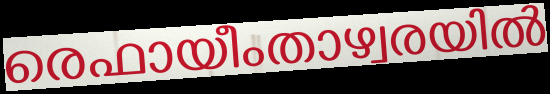
രെഫായീംതാഴ്വരയിൽ